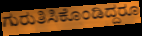
ಗುರುತಿಸಿಕೊಂಡಿದ್ದರೂ